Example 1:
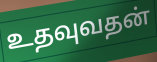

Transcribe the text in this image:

உதவுவதன்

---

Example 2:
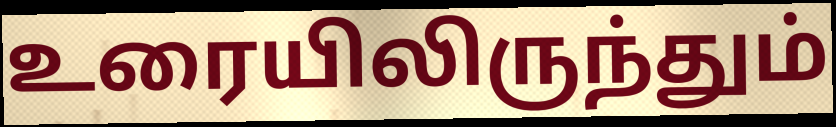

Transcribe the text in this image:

உரையிலிருந்தும்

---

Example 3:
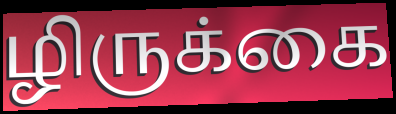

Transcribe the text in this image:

ழிருக்கை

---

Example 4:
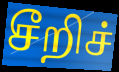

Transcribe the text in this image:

சீறிச்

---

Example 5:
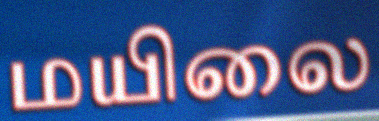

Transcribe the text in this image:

மயிலை